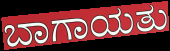
ಬಾಗಾಯತು